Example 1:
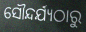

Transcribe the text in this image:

ସୌନ୍ଦର୍ଯ୍ୟଠାରୁ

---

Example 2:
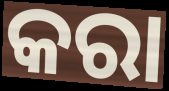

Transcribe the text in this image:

କରା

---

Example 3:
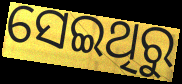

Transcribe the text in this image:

ସେଇଥିରୁ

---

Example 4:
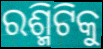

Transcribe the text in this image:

ରଶ୍ମିଟିକୁ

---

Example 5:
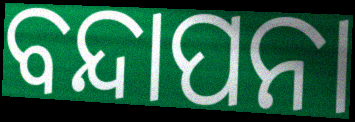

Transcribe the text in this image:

ବନ୍ଦାପନା